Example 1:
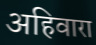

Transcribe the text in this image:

अहिवारा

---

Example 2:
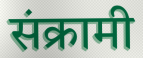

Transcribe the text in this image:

संक्रामी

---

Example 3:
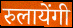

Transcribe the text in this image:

रुलायेंगी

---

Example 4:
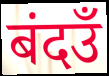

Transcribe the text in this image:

बंदउँ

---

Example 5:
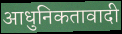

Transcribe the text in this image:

आधुनिकतावादी